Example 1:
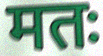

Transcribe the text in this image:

मतः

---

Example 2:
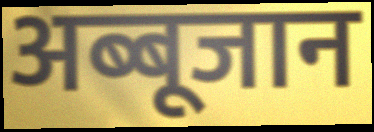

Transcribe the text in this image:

अब्बूजान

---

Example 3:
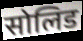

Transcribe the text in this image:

सोलिड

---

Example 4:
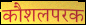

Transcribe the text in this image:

कौशलपरक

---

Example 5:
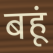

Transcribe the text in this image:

बहूं